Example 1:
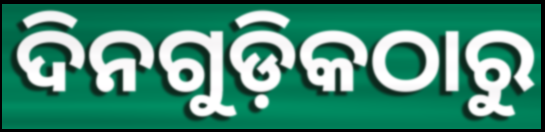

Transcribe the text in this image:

ଦିନଗୁଡ଼ିକଠାରୁ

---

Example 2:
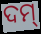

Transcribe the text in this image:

ଦମ୍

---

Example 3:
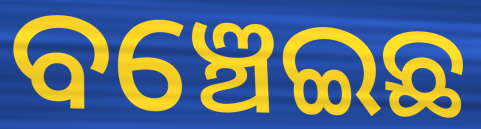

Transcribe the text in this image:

ବଞ୍ଚେଇଛ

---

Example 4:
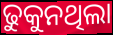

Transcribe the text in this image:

ଢୁକୁନଥିଲା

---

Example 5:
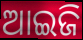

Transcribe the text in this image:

ଆଇଜି